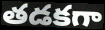
తడకగా